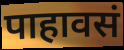
पाहावसं